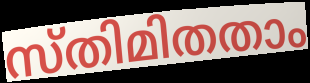
സ്തിമിതതാം